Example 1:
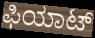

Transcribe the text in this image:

ಫಿಯಾಟ್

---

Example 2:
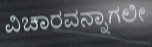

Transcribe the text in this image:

ವಿಚಾರವನ್ನಾಗಲೀ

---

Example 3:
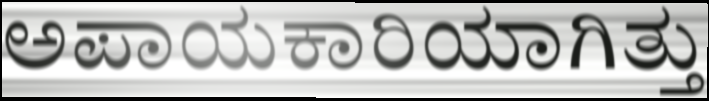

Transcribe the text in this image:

ಅಪಾಯಕಾರಿಯಾಗಿತ್ತು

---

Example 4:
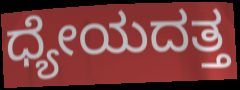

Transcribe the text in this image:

ಧ್ಯೇಯದತ್ತ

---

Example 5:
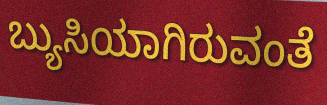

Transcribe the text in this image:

ಬ್ಯುಸಿಯಾಗಿರುವಂತೆ